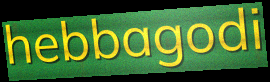
hebbagodi